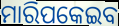
ମାରିପକେଇବ